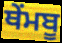
ਥੇਂਮਬੂ